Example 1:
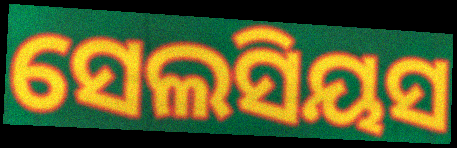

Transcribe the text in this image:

ସେଲସିୟସ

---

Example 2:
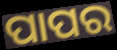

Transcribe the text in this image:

ପାପର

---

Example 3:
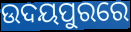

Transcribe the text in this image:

ଉଦୟପୁରରେ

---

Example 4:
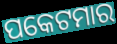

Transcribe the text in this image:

ପକେଟମାର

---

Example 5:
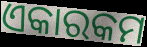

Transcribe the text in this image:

ଏକାରକମ